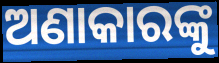
ଅଣାକାରଙ୍କୁ